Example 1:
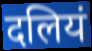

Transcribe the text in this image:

दलियं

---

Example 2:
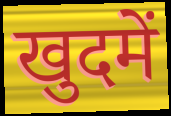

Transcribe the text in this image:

खुदमें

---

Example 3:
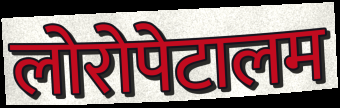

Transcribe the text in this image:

लोरोपेटालम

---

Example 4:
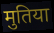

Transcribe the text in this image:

मुतिया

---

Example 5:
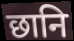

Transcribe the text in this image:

छानि